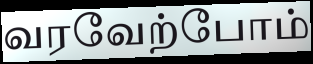
வரவேற்போம்